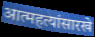
आत्महत्यांसारखे